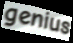
genius